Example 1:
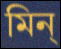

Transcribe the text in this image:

মিন্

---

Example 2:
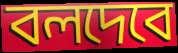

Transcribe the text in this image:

বলদেবে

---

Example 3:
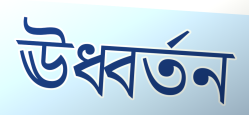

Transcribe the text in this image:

ঊধ্বর্তন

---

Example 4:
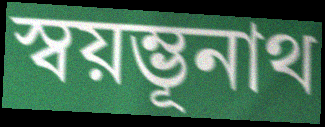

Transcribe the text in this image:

স্বয়ম্ভূনাথ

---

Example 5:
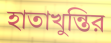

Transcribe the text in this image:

হাতাখুন্তির